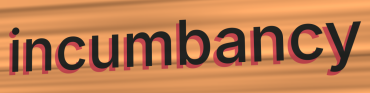
incumbancy